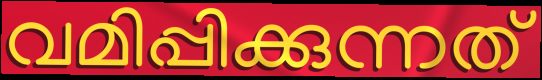
വമിപ്പിക്കുന്നത്